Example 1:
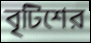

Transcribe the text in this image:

বৃটিশের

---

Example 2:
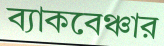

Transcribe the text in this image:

ব্যাকবেঞ্চার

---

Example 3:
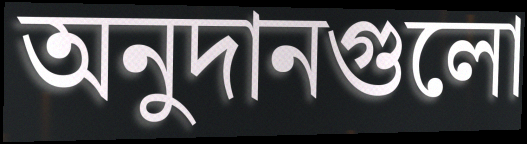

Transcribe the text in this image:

অনুদানগুলো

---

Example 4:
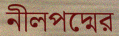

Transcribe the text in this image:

নীলপদ্মের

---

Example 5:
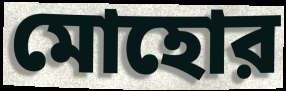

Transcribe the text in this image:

মোহোর